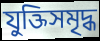
যুক্তিসমৃদ্ধ